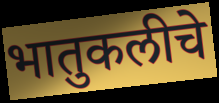
भातुकलीचे